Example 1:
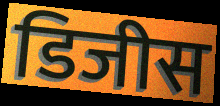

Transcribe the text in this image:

डिजीस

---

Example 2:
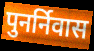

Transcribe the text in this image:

पुनर्निवास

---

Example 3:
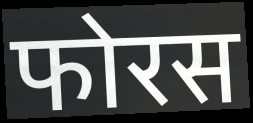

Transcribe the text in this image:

फोरस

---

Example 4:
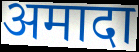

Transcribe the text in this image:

अमादा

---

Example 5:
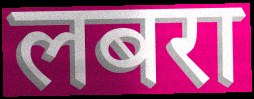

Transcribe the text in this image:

लबरा